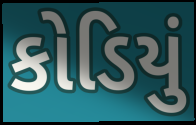
કોડિયું